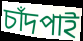
চাঁদপাই